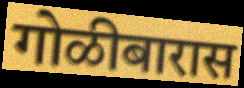
गोळीबारास